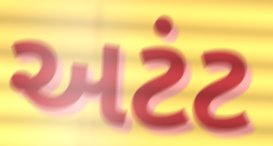
અટંટ